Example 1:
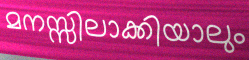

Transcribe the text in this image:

മനസ്സിലാക്കിയാലും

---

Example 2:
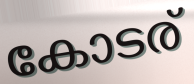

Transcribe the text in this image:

കോടര്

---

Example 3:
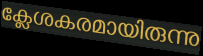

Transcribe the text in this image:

ക്ലേശകരമായിരുന്നു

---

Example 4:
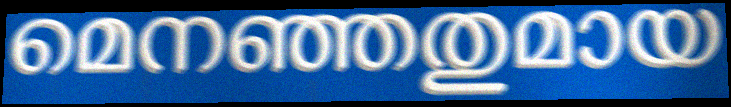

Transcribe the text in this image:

മെനഞ്ഞതുമായ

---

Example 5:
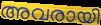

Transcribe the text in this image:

അവരായി